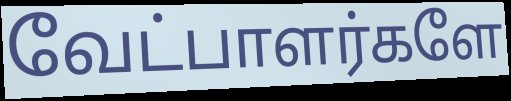
வேட்பாளர்களே